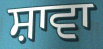
ਸ਼ਾਵਾ